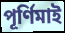
পূৰ্ণিমাই